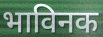
भाविनक